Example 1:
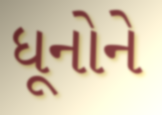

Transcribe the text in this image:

ધૂનોને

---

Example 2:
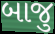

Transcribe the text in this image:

બાજુ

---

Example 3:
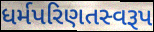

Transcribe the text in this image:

ધર્મપરિણતસ્વરૂપ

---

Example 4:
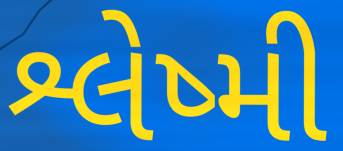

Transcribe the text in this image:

શ્લેષ્મી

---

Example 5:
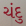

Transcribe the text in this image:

ચંદુ